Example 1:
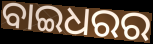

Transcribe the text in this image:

ବାଇଧରର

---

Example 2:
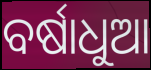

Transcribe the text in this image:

ବର୍ଷାଧୁଆ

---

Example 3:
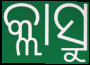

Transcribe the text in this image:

କ୍ଲାସ୍ରୁ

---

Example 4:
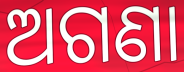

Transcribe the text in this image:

ଅଗଣା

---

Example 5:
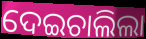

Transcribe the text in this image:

ଦେଇଚାଲିଲା